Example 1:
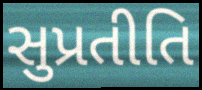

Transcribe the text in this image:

સુપ્રતીતિ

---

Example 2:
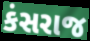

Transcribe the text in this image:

કંસરાજ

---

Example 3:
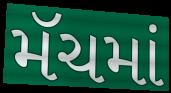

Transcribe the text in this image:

મૅચમાં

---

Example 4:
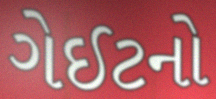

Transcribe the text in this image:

ગેઈટનો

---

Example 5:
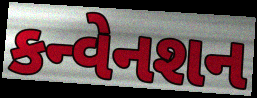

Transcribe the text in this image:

કન્વેનશન